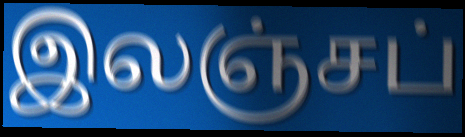
இலஞ்சப்